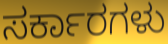
ಸರ್ಕಾರಗಳು